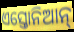
ଏସ୍ତୋନିଆନ୍